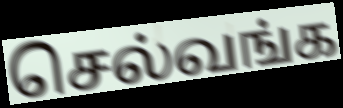
செல்வங்க